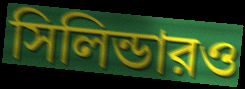
সিলিন্ডারও